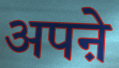
अपऩे